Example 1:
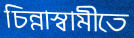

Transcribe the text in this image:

চিন্নাস্বামীতে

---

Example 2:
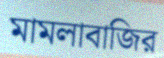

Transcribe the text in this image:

মামলাবাজির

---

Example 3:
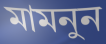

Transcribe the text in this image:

মামনুন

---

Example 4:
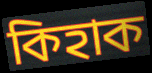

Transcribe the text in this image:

কিহাক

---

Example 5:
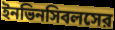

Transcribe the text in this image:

ইনভিনসিবলসের